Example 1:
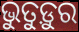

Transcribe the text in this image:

ଭୁତୁଡ଼ୁର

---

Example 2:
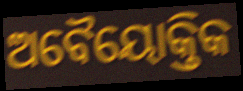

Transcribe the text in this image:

ଅବୈୟୋକ୍ତିକ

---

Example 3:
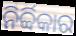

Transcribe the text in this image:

ନିର୍ବ୍ବିକାର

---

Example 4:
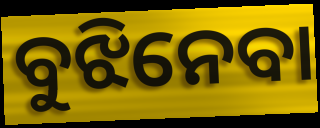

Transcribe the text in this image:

ବୁଝିନେବା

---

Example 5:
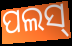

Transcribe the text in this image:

ପଲସ୍